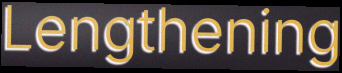
Lengthening